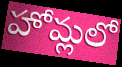
హోమ్లలో